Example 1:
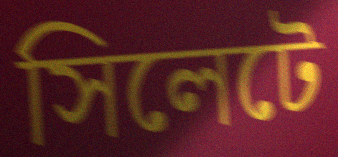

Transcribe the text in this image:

সিলেটে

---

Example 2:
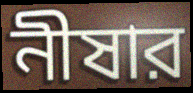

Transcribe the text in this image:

নীষার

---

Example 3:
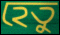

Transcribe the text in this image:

হেতু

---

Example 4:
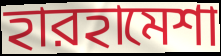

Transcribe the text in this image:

হারহামেশা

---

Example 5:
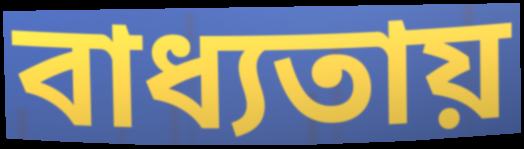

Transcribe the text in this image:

বাধ্যতায়